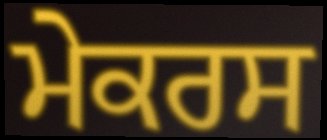
ਮੇਕਰਸ